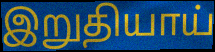
இறுதியாய்